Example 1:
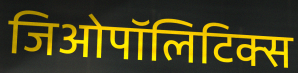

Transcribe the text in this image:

जिओपॉलिटिक्स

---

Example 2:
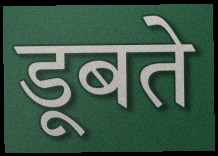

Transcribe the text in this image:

डूबते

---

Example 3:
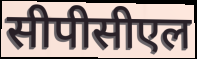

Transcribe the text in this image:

सीपीसीएल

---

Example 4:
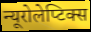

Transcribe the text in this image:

न्यूरोलेप्टिक्स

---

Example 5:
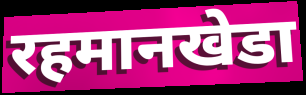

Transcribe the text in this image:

रहमानखेडा